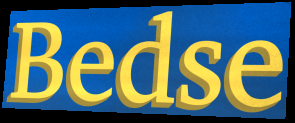
Bedse